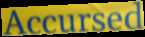
Accursed